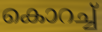
കൊറച്ച്